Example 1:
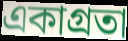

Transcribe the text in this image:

একাগ্ৰতা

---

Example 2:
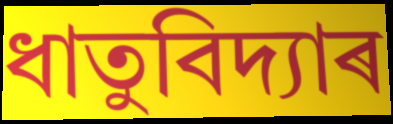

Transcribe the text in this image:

ধাতুবিদ্যাৰ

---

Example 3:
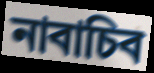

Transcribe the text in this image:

নাবাচিব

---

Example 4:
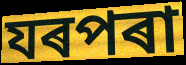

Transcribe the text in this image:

যৰপৰা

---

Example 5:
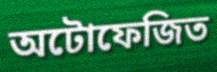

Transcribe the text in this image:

অটোফেজিত